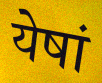
येषां